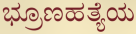
ಭ್ರೂಣಹತ್ಯೆಯ